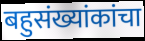
बहुसंख्यांकांचा